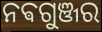
ନଵଗୁଞ୍ଜର